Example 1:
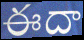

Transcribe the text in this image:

ఈదా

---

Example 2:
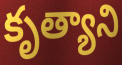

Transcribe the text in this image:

కృత్యాని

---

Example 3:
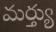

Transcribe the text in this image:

మర్త్యు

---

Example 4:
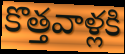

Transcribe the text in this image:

కొత్తవాళ్లకి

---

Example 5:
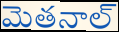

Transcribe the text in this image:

మెతనాల్